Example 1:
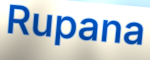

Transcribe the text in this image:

Rupana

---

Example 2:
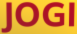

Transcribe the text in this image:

JOGI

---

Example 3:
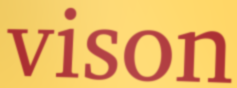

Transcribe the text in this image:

vison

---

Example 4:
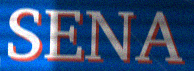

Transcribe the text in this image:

SENA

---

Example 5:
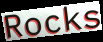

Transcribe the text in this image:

Rocks